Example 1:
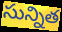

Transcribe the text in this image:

సున్నిత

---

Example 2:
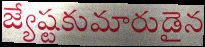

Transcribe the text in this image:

జ్యేష్టకుమారుడైన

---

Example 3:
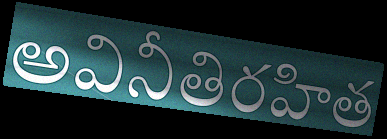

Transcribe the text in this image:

అవినీతిరహిత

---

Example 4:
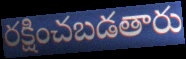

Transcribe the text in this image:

రక్షించబడతారు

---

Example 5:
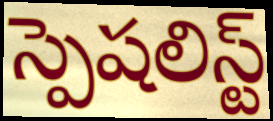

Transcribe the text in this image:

స్పెషలిస్ట్